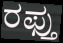
ರಫ್ತು